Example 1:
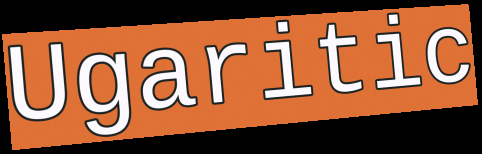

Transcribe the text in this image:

Ugaritic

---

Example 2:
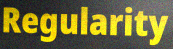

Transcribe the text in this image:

Regularity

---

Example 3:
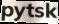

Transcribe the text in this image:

pytsk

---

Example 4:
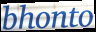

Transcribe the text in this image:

bhonto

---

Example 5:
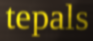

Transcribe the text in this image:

tepals